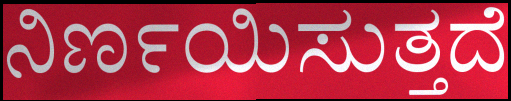
ನಿರ್ಣಯಿಸುತ್ತದೆ